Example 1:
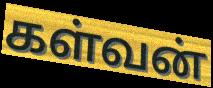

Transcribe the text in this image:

கள்வன்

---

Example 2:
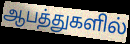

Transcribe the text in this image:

ஆபத்துகளில்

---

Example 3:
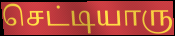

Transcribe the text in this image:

செட்டியாரு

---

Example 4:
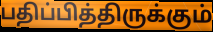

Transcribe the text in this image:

பதிப்பித்திருக்கும்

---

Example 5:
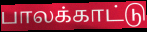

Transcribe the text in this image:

பாலக்காட்டு